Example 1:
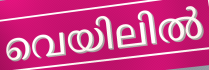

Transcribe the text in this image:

വെയിലിൽ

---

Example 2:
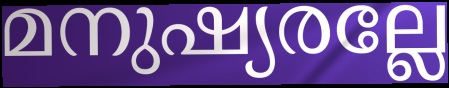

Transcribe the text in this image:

മനുഷ്യരല്ലേ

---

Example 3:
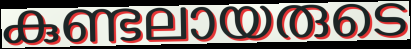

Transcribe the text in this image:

കുണ്ടലായരുടെ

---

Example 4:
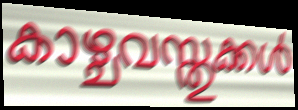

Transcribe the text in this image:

കാഴ്ചവസ്തുക്കൾ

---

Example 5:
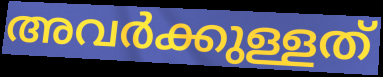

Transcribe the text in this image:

അവർക്കുള്ളത്